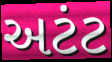
અટંટ